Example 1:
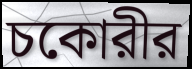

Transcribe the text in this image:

চকোরীর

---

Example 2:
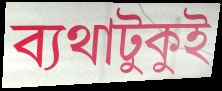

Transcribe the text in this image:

ব্যথাটুকুই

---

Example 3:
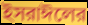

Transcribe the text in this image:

ইসরাঈলের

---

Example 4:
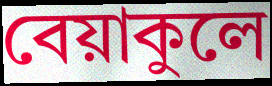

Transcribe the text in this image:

বেয়াকুলে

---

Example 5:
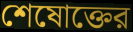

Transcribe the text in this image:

শেষোক্তের